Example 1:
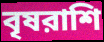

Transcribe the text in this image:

বৃষরাশি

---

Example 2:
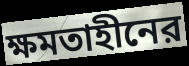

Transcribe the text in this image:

ক্ষমতাহীনের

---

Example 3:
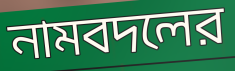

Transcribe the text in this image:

নামবদলের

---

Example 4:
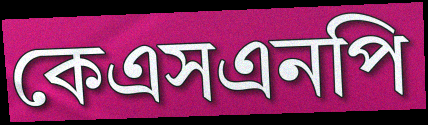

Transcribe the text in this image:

কেএসএনপি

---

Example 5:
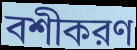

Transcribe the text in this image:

বশীকরণ